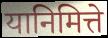
यानिमित्ते